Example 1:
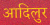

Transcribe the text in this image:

आदिलुर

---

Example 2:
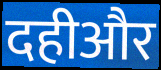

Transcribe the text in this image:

दहीऔर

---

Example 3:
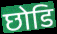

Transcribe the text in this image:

छोडि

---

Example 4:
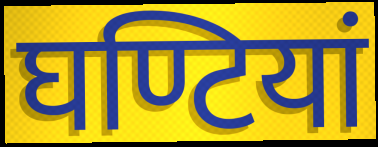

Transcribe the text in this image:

घण्टियां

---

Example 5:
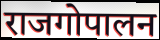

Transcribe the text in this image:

राजगोपालन